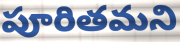
పూరితమని